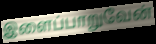
இளைப்பாறுவேன்